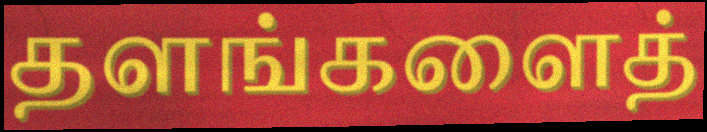
தளங்களைத்